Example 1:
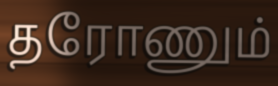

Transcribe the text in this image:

தரோணும்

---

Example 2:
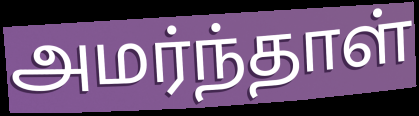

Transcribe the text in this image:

அமர்ந்தாள்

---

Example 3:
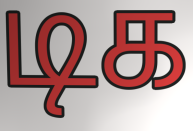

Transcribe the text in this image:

டிக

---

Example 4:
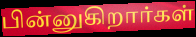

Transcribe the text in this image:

பின்னுகிறார்கள்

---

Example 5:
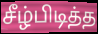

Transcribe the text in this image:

சீழ்பிடித்த